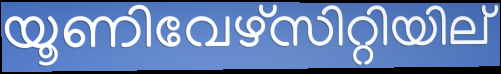
യൂണിവേഴ്സിറ്റിയില്